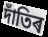
দাঁতিৰ